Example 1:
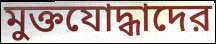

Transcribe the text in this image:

মুক্তযোদ্ধাদের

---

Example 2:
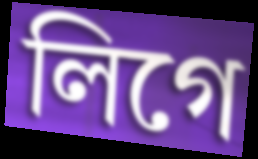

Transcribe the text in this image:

লিগে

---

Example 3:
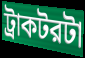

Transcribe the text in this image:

ট্রাকটরটা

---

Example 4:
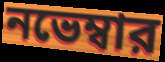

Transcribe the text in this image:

নভেম্বার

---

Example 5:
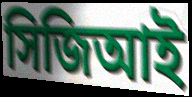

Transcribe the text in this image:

সিজিআই